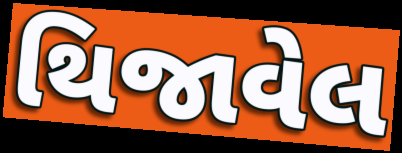
થિજાવેલ